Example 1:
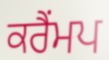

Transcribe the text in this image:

ਕਰੈਂਮਪ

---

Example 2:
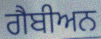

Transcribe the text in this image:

ਗੈਬੀਅਨ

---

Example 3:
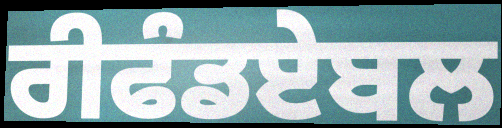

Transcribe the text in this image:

ਰੀਫੰਡਏਬਲ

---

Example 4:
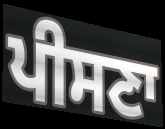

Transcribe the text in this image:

ਪੀਸਣਾ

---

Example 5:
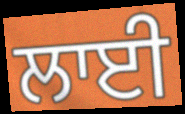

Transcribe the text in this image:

ਲਾਈ